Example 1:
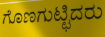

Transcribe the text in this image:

ಗೊಣಗುಟ್ಟಿದರು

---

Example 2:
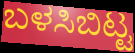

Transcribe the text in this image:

ಬಳಸಿಬಿಟ್ಟ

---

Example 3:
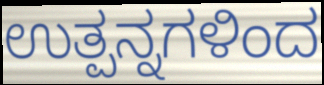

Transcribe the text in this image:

ಉತ್ಪನ್ನಗಳಿಂದ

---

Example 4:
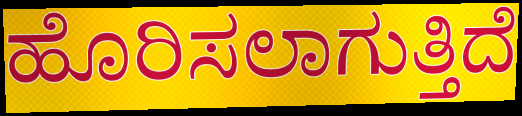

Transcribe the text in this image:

ಹೊರಿಸಲಾಗುತ್ತಿದೆ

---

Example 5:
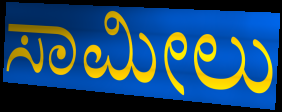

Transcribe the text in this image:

ಸಾಮೀಲು